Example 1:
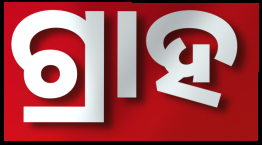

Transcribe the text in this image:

ଗ୍ରାହ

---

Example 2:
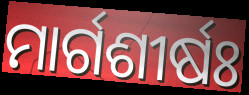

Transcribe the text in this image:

ମାର୍ଗଶୀର୍ଷଃ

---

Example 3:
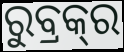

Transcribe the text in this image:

ରୁବ୍ରକ୍‍ର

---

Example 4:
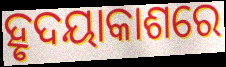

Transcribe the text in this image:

ହୃଦୟାକାଶରେ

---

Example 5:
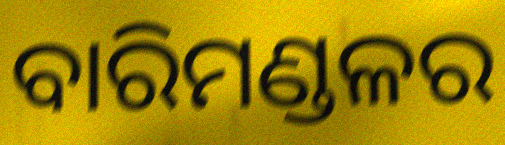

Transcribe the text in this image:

ବାରିମଣ୍ଡଳର